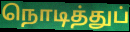
நொடித்துப்